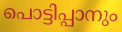
പൊട്ടിപ്പാനും